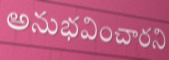
అనుభవించారని